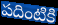
పదింటికి